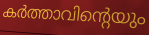
കർത്താവിന്റെയും